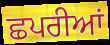
ਛਪਰੀਆਂ